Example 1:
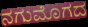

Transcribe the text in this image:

ನಗುಮೊಗದ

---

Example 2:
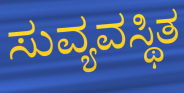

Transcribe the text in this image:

ಸುವ್ಯವಸ್ಥಿತ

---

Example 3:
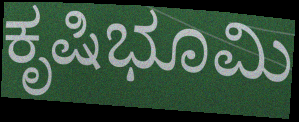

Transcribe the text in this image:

ಕೃಷಿಭೂಮಿ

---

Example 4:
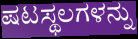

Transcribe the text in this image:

ಷಟಸ್ಥಲಗಳನ್ನು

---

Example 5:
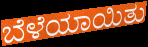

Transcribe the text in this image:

ಬೆಳೆಯಾಯಿತು